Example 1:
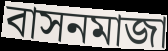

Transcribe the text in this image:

বাসনমাজা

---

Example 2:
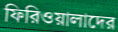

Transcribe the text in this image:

ফিরিওয়ালাদের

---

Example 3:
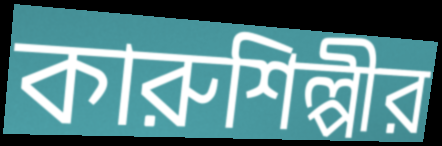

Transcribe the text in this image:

কারুশিল্পীর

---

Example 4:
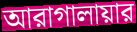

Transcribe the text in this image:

আরাগালায়ার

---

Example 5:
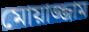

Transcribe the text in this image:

মোয়াজ্জাম